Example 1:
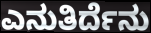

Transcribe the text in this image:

ಎನುತಿರ್ದೆನು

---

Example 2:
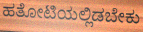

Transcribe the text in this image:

ಹತೋಟಿಯಲ್ಲಿಡಬೇಕು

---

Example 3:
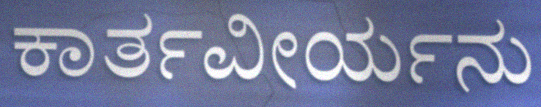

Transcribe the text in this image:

ಕಾರ್ತವೀರ್ಯನು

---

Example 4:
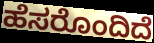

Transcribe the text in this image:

ಹೆಸರೊಂದಿದೆ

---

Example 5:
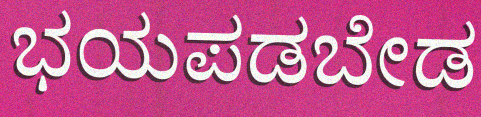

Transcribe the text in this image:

ಭಯಪಡಬೇಡ